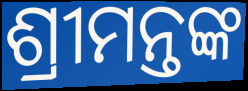
ଶ୍ରୀମନ୍ତଙ୍କ